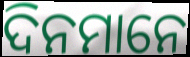
ଦିନମାନେ